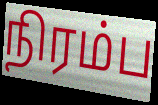
நிரம்ப